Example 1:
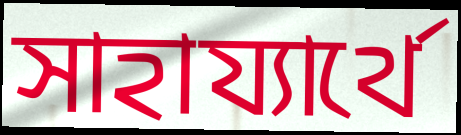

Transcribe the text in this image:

সাহায্যার্থে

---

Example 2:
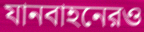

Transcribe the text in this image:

যানবাহনেরও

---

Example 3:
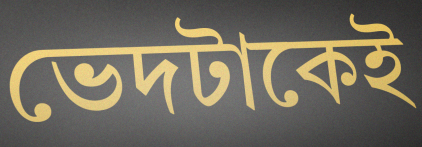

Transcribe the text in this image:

ভেদটাকেই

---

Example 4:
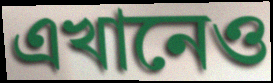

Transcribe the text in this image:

এখানেও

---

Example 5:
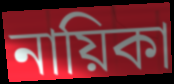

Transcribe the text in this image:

নায়িকা